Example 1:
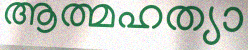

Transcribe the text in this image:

ആത്മഹത്യാ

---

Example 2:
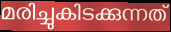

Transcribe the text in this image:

മരിച്ചുകിടക്കുന്നത്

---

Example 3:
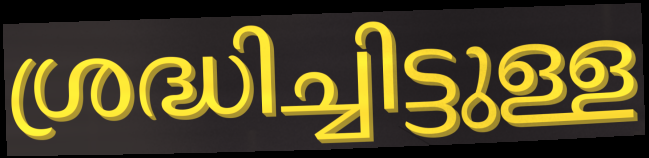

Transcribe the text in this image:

ശ്രദ്ധിച്ചിട്ടുള്ള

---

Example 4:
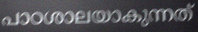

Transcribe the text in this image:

പാഠശാലയാകുന്നത്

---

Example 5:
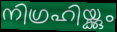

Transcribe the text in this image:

നിഗ്രഹിയ്ക്കും